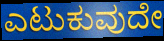
ಎಟುಕುವುದೇ